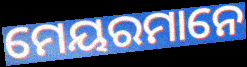
ମେୟରମାନେ